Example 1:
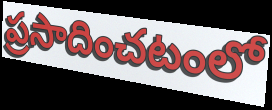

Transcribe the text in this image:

ప్రసాదించటంలో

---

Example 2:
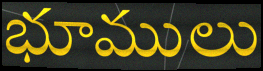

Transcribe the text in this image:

భూములు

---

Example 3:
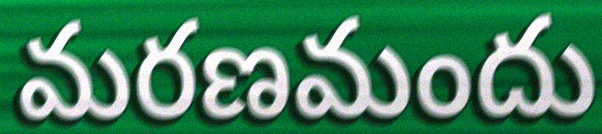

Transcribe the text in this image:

మరణమందు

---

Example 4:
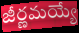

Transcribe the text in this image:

జీర్ణమయ్యే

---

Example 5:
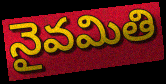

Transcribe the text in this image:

నైవమితి